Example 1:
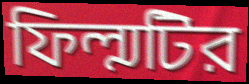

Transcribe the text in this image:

ফিল্মটির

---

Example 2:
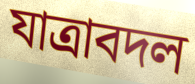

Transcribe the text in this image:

যাত্রাবদল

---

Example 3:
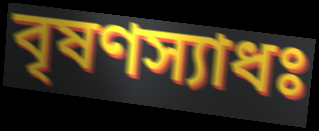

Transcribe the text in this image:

বৃষণস্যাধঃ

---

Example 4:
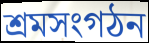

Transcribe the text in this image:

শ্রমসংগঠন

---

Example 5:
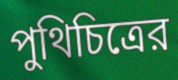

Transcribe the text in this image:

পুথিচিত্রের